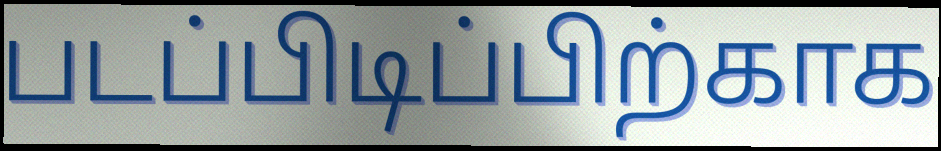
படப்பிடிப்பிற்காக